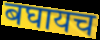
बघायच